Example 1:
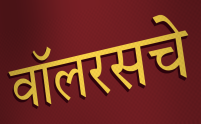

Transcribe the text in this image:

वॉलरसचे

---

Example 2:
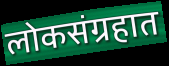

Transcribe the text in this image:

लोकसंग्रहात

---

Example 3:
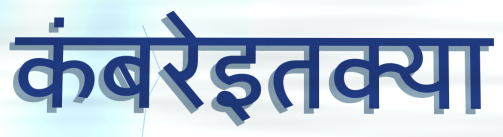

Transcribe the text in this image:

कंबरेइतक्या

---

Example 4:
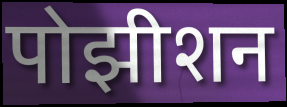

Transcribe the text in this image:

पोझीशन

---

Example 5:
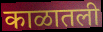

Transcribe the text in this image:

काळातली